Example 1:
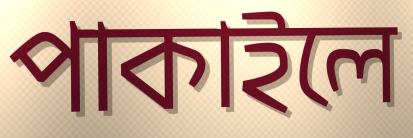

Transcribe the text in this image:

পাকাইলে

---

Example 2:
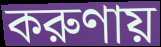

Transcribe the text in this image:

করুণায়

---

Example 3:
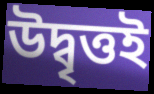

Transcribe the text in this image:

উদ্বৃত্তই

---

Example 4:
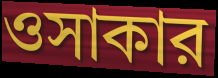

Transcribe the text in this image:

ওসাকার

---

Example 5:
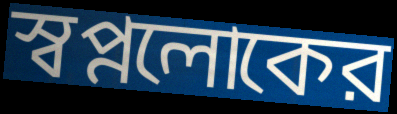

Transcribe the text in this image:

স্বপ্নলোকের